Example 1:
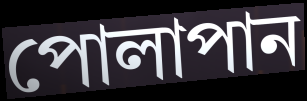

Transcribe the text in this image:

পোলাপান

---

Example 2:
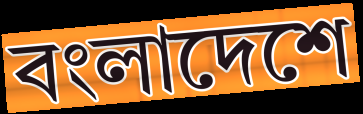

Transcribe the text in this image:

বংলাদেশে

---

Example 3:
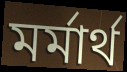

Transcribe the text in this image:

মর্মার্থ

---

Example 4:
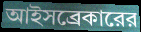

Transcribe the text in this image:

আইসব্রেকারের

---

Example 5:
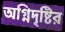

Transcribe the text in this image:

অগ্নিদৃষ্টির